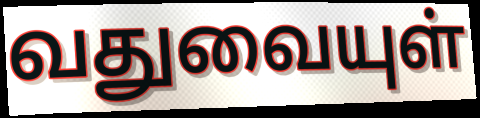
வதுவையுள்